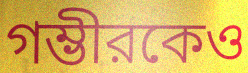
গম্ভীরকেও